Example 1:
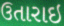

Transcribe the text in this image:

ઉતારાઇ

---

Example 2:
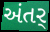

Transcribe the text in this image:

અંતર્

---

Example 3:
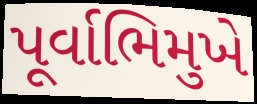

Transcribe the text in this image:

પૂર્વાભિમુખે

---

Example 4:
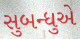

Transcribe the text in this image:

સુબન્ધુએ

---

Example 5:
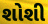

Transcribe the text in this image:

શોશી